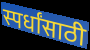
स्पर्धांसाठी